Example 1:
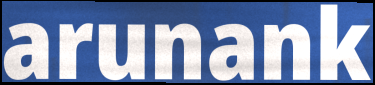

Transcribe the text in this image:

arunank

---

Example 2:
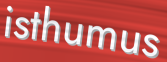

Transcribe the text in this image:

isthumus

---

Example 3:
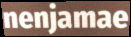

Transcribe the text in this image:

nenjamae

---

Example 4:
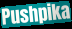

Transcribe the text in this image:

Pushpika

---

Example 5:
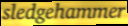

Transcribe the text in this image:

sledgehammer